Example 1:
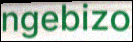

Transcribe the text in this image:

ngebizo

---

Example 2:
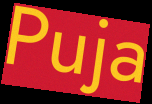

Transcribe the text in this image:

Puja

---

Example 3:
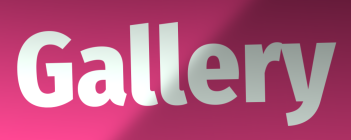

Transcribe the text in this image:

Gallery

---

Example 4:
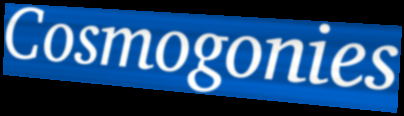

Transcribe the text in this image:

Cosmogonies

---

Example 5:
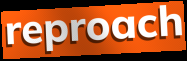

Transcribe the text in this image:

reproach